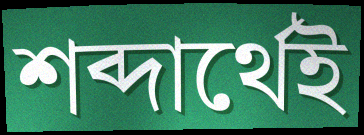
শব্দার্থেই